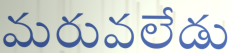
మరువలేడు